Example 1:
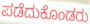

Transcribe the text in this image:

ಪಡೆದುಕೊಂಡರು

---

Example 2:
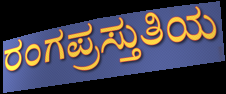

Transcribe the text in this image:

ರಂಗಪ್ರಸ್ತುತಿಯ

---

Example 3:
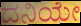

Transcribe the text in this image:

ದನಿಯೇ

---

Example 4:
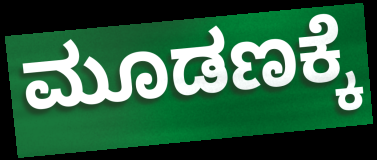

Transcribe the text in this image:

ಮೂಡಣಕ್ಕೆ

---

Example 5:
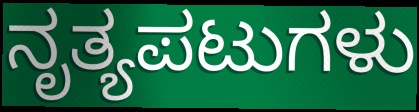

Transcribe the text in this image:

ನೃತ್ಯಪಟುಗಳು